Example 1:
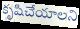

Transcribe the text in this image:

కృషిచేయాలని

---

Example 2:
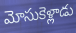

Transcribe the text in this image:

మోసుకెళ్లాడు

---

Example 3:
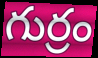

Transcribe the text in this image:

గుర్రం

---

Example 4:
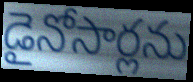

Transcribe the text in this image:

డైనోసార్లను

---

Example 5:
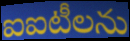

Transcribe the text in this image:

ఐఐటీలను